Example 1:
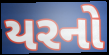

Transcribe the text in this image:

યરનો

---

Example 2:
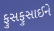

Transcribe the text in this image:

ફુસફુસાઈને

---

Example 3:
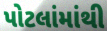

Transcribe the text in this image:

પોટલાંમાંથી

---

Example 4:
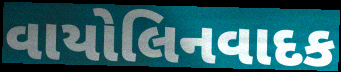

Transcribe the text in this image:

વાયોલિનવાદક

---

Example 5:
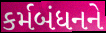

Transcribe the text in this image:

કર્મબંધનને